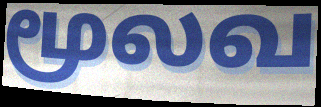
மூலவ